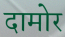
दामोर